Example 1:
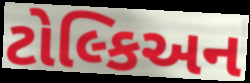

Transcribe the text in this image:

ટોલ્કિઅન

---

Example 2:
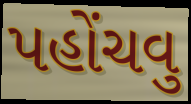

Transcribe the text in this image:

પહોંચવુ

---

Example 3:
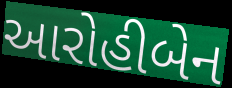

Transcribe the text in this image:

આરોહીબેન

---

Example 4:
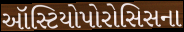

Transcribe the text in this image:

ઑસ્ટિયોપોરોસિસના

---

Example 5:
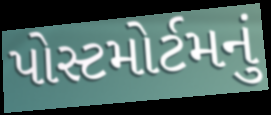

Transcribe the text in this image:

પોસ્ટમોર્ટમનું